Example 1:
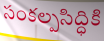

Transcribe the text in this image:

సంకల్పసిద్ధికి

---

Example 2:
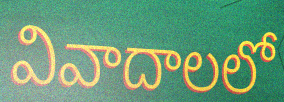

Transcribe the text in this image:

వివాదాలలో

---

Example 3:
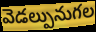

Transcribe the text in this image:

వెడల్పునుగల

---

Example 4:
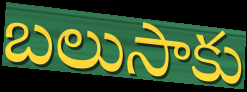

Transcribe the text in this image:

బలుసాకు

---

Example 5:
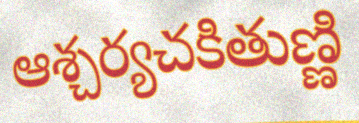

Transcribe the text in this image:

ఆశ్చర్యచకితుణ్ణి